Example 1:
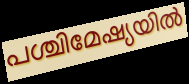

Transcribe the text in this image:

പശ്ചിമേഷ്യയിൽ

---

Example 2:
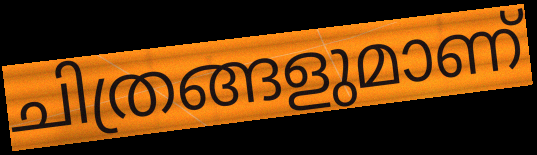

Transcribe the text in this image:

ചിത്രങ്ങളുമാണ്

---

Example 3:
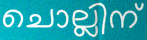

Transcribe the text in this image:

ചൊല്ലിന്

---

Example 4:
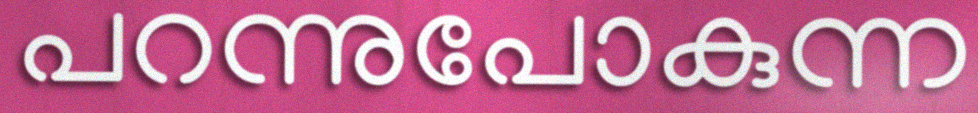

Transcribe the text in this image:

പറന്നുപോകുന്ന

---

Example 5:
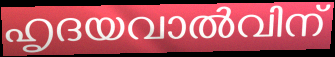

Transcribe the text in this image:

ഹൃദയവാൽവിന്